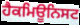
ਹੈਕਮਿਊਨਿਸਟ